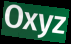
Oxyz